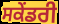
ਸਕੇਂਡਰੀ